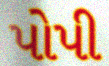
પોપી